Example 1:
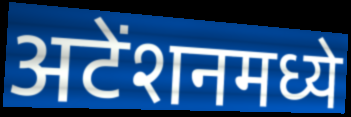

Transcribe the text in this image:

अटेंशनमध्ये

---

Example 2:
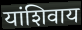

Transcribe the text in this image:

यांशिवाय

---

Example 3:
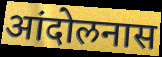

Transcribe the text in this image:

आंदोलनास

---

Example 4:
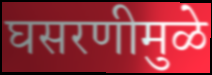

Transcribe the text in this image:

घसरणीमुळे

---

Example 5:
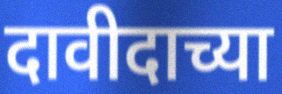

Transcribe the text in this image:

दावीदाच्या